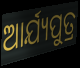
ଆର୍ଯ୍ୟପୁତ୍ର